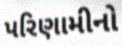
પરિણામીનો